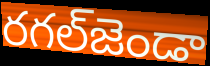
రగల్‌జెండా